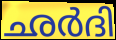
ഛർദി